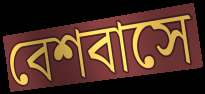
বেশবাসে